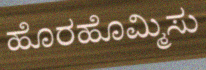
ಹೊರಹೊಮ್ಮಿಸು